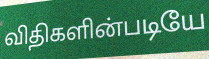
விதிகளின்படியே